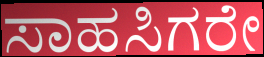
ಸಾಹಸಿಗರೇ